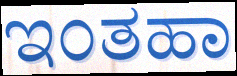
ಇಂತಹಾ